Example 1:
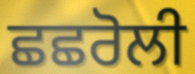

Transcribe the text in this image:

ਛਛਰੋਲੀ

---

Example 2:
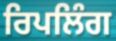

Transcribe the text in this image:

ਰਿਪਲਿੰਗ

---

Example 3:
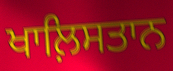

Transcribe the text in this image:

ਖਾਲ਼ਿਸਤਾਨ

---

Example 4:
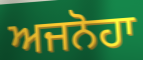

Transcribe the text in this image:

ਅਜਨੋਹਾ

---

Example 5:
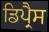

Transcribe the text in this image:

ਡਿਪ੍ਰੈਸ